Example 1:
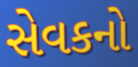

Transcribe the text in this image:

સેવકનો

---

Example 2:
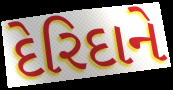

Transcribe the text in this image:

દેરિદાને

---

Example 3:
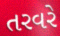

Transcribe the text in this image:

તરવરે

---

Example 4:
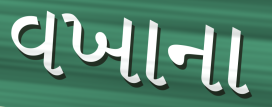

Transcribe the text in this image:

વખાના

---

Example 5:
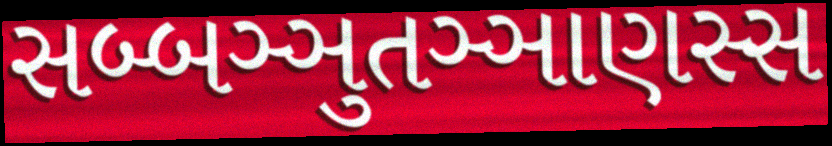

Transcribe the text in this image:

સબ્બઞ્ઞુતઞ્ઞાણસ્સ